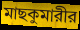
মাছকুমারীর